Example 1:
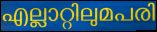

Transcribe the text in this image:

എല്ലാറ്റിലുമപരി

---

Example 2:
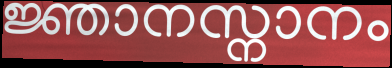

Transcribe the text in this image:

ജ്ഞാനസ്നാനം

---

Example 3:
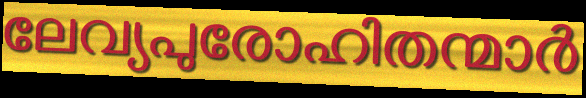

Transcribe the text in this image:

ലേവ്യപുരോഹിതന്മാർ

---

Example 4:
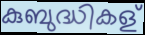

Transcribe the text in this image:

കുബുദ്ധികള്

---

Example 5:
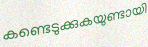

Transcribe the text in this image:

കണ്ടെടുക്കുകയുണ്ടായി